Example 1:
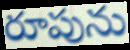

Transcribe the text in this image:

రూపును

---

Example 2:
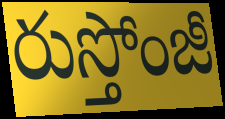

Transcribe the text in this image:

రుస్తోంజీ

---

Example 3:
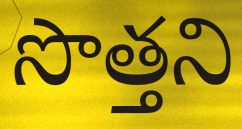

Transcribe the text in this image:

సొత్తని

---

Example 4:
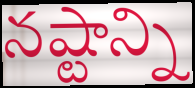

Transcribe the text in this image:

నష్టాన్ని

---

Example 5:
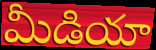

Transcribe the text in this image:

మీడియా